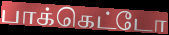
பாக்கெட்டோ